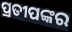
ପ୍ରତୀପଙ୍କର